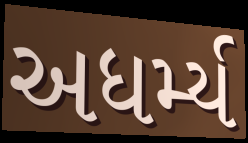
અધર્મ્ય